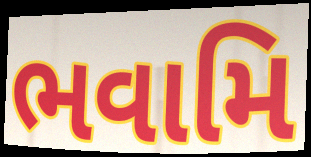
ભવામિ